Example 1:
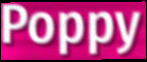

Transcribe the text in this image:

Poppy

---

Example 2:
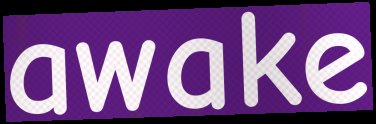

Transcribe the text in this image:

awake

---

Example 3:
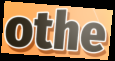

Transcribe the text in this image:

othe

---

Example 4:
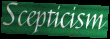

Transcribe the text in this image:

Scepticism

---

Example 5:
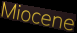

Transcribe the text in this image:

Miocene